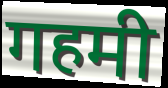
गहमी